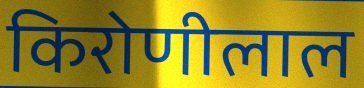
किरोणीलाल